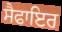
ਸੈਫਾਇਰ